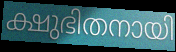
ക്ഷുഭിതനായി